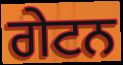
ਗੇਟਨ